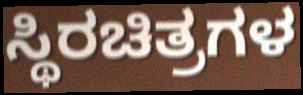
ಸ್ಥಿರಚಿತ್ರಗಳ